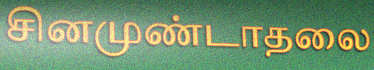
சினமுண்டாதலை